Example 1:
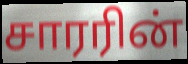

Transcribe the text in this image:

சாரரின்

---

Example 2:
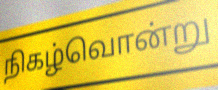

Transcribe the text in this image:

நிகழ்வொன்று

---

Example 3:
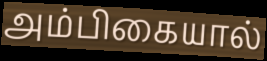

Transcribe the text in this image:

அம்பிகையால்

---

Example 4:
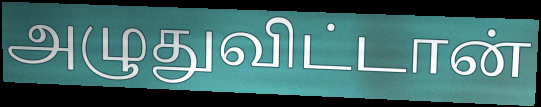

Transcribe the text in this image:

அழுதுவிட்டான்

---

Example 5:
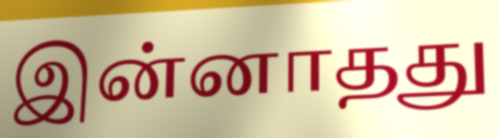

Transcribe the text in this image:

இன்னாதது